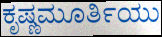
ಕೃಷ್ಣಮೂರ್ತಿಯು